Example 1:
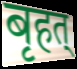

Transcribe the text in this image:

बृहत्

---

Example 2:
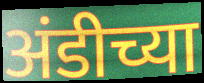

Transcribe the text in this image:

अंडीच्या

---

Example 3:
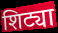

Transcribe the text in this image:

शिट्या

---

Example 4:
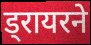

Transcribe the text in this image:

ड्रायरने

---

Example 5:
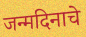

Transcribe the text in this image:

जन्मदिनाचे